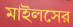
মাইলসের